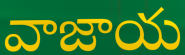
వాజాయ